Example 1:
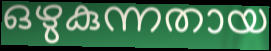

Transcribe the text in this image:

ഒഴുകുന്നതായ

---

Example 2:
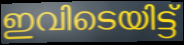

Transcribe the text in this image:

ഇവിടെയിട്ട്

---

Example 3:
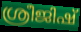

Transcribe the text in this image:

ശ്രീജിഷ്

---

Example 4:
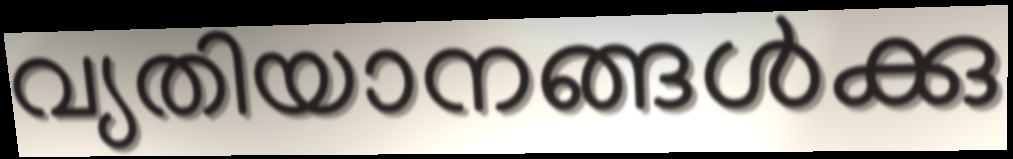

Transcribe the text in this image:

വ്യതിയാനങ്ങൾക്കു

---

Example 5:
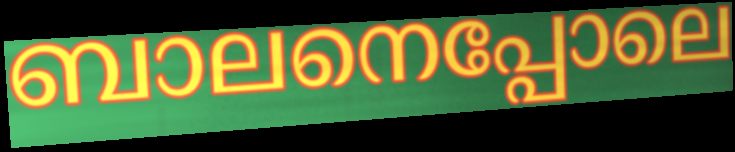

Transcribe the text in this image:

ബാലനെപ്പോലെ